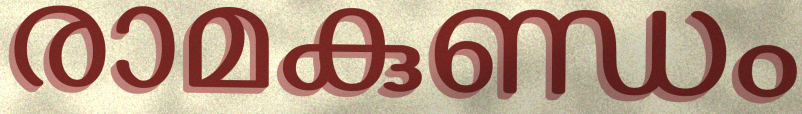
രാമകുണ്ഡം